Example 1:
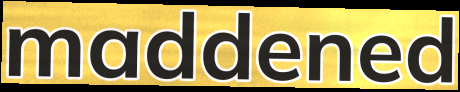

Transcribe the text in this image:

maddened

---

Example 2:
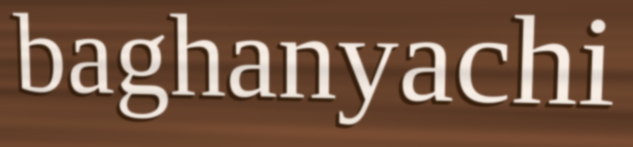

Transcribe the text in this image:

baghanyachi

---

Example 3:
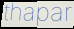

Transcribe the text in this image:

thapar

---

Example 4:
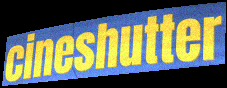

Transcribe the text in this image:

cineshutter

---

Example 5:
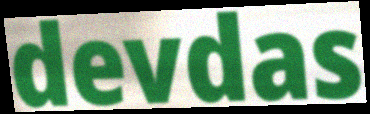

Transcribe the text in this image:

devdas